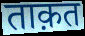
ताक़त